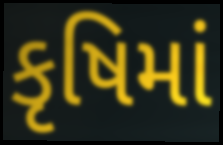
કૃષિમાં